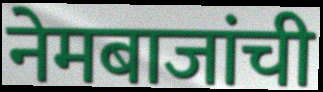
नेमबाजांची